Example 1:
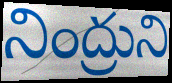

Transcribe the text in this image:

నింద్రుని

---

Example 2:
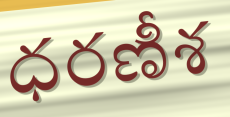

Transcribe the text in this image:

ధరణీశ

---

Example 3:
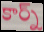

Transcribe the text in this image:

కార్న్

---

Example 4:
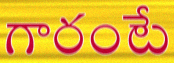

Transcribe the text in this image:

గారంటే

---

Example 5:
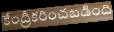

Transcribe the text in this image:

కేంద్రీకరించబడింది